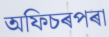
অফিচৰপৰা